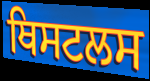
ਥਿਸਟਲਸ